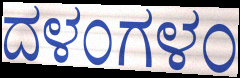
ದಳಂಗಳಂ